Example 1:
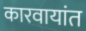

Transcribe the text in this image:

कारवायांत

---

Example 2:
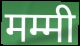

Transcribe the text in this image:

मम्मी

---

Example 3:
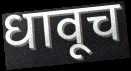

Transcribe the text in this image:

धावूच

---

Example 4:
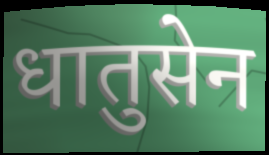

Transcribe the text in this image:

धातुसेन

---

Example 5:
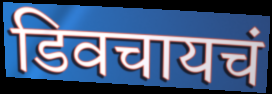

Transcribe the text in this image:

डिवचायचं